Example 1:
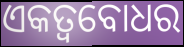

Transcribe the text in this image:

ଏକତ୍ୱବୋଧର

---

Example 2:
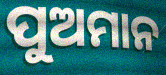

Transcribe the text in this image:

ପୁଅମାନ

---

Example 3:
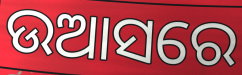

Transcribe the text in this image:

ଉଆସରେ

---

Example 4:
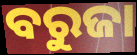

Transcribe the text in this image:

ବରୁଜା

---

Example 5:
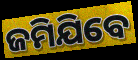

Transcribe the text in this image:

ଜମିଯିବେ